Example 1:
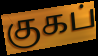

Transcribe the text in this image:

குகப்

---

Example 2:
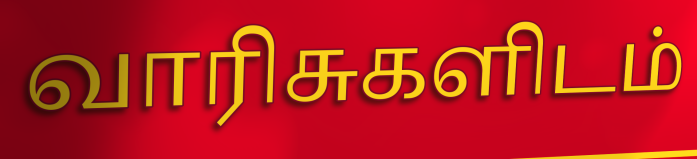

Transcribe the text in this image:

வாரிசுகளிடம்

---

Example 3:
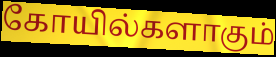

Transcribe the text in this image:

கோயில்களாகும்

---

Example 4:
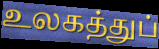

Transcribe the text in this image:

உலகத்துப்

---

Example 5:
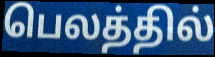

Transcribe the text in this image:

பெலத்தில்